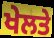
ਖੇਲਤੇ